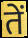
तें